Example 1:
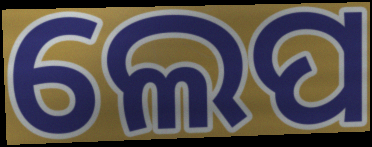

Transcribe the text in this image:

ଲେପ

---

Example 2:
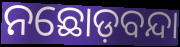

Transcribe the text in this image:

ନଛୋଡ଼ବନ୍ଦା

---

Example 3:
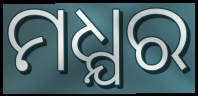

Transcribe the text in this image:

ମଧ୍ଯର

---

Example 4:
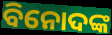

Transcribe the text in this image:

ବିନୋଦଙ୍କ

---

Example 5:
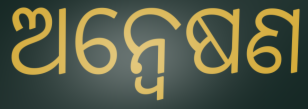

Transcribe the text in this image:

ଅନ୍ବେଷଣ